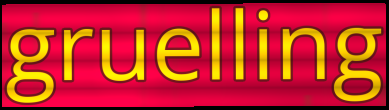
gruelling